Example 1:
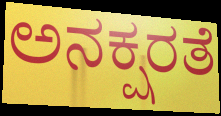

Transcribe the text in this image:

ಅನಕ್ಷರತೆ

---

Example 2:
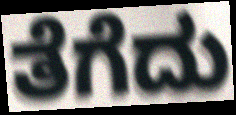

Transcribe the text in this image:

ತೆಗೆದು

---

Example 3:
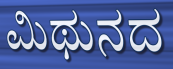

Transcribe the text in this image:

ಮಿಥುನದ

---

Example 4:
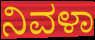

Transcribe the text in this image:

ನಿವಳಾ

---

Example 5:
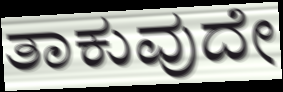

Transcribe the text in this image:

ತಾಕುವುದೇ